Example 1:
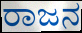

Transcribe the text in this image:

ರಾಜನ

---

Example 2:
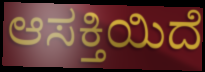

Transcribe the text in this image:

ಆಸಕ್ತಿಯಿದೆ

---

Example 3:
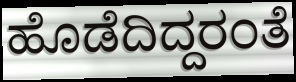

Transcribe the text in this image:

ಹೊಡೆದಿದ್ದರಂತೆ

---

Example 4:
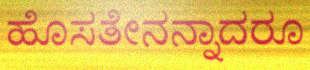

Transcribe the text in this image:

ಹೊಸತೇನನ್ನಾದರೂ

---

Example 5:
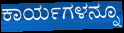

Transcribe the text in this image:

ಕಾರ್ಯಗಳನ್ನೂ